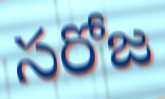
సరోజ